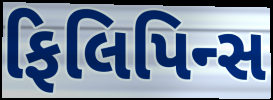
ફિલિપિન્સ